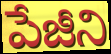
పేజీని